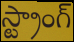
స్ట్రాంగ్